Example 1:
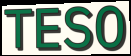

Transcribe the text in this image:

TESO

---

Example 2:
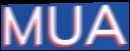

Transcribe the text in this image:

MUA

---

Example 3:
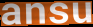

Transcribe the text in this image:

ansu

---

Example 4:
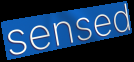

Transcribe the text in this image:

sensed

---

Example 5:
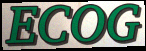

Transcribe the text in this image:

ECOG